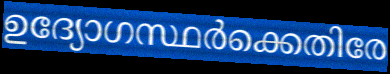
ഉദ്യോഗസ്ഥർക്കെതിരേ